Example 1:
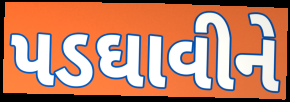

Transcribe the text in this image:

પડઘાવીને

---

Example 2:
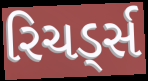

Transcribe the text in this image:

રિચર્ડ્સ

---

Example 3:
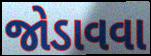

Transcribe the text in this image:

જોડાવવા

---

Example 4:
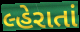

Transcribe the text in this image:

લ્હેરાતાં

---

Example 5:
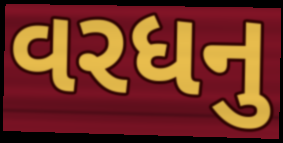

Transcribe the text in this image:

વરધનુ